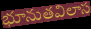
భూనుతవిలాస